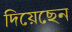
দিয়েছেন